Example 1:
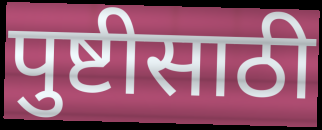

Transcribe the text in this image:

पुष्टीसाठी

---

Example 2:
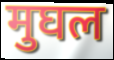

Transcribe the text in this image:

मुघल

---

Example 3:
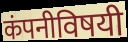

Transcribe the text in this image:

कंपनीविषयी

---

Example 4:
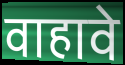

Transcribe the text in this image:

वाहावे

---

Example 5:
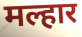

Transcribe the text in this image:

मल्हार